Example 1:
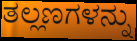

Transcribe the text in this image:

ತಲ್ಲಣಗಳನ್ನು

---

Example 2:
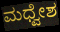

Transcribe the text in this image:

ಮಧ್ವೇಶ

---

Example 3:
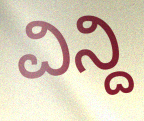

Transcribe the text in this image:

ವಿನ್ದಿ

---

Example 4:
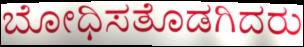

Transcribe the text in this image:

ಬೋಧಿಸತೊಡಗಿದರು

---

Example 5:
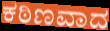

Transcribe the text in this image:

ಕಠಿಣವಾದ